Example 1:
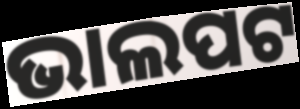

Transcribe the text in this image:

ଭାଲପଟ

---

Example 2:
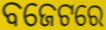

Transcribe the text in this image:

ବଜେଟରେ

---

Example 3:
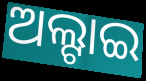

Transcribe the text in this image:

ଅଲ୍ଟାଇ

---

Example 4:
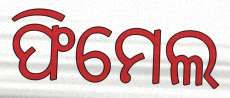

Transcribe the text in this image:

ଫିମେଲ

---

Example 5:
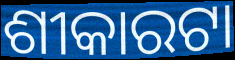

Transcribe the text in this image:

ଶୀକାରଟା